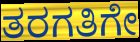
ತರಗತಿಗೇ